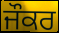
ਜੌਕਰ